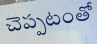
చెప్పటంతో